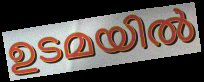
ഉടമയിൽ